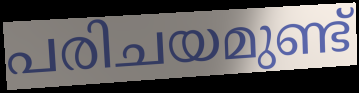
പരിചയമുണ്ട്